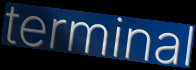
terminal